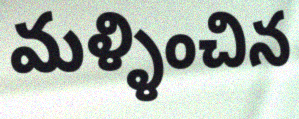
మళ్ళించిన